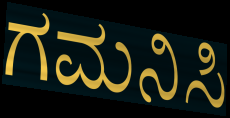
ಗಮನಿಸಿ